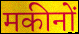
मकीनों